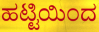
ಹಟ್ಟಿಯಿಂದ